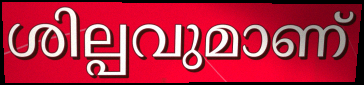
ശില്പവുമാണ്